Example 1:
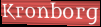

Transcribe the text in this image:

Kronborg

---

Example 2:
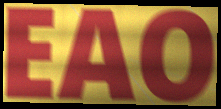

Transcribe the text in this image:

EAO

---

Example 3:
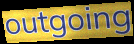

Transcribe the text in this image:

outgoing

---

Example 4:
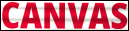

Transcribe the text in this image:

CANVAS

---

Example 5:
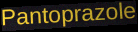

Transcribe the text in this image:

Pantoprazole